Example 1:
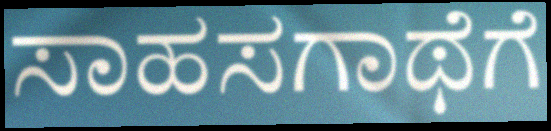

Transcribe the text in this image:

ಸಾಹಸಗಾಥೆಗೆ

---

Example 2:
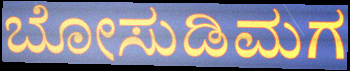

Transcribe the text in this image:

ಬೋಸುಡಿಮಗ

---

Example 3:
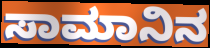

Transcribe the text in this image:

ಸಾಮಾನಿನ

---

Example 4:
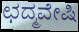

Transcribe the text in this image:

ಛದ್ಮವೇಷಿ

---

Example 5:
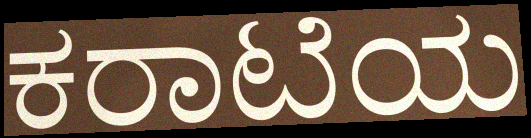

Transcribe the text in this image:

ಕರಾಟೆಯ